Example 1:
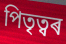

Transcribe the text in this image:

পিতৃত্বৰ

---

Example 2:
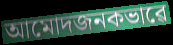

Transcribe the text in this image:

আমোদজনকভাৱে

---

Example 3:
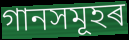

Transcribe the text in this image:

গানসমূহৰ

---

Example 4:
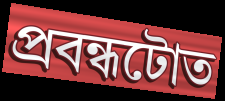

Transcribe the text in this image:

প্ৰবন্ধটোত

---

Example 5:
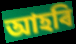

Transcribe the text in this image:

আহৰি